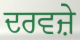
ਦਰਵਜ਼ੇ